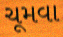
ચૂમવા